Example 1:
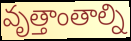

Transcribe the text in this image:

వృత్తాంతాల్ని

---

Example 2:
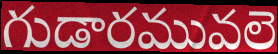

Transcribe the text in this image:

గుడారమువలె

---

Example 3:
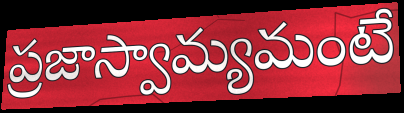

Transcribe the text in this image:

ప్రజాస్వామ్యమంటే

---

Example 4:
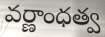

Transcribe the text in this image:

వర్ణాంధత్వ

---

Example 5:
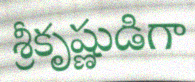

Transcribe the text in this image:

శ్రీకృష్ణుడిగా